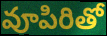
వూపిరితో